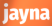
jayna